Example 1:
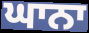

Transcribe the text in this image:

ਘਾਨਾ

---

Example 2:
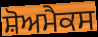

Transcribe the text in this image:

ਸ਼ੋਅਮੈਕਸ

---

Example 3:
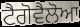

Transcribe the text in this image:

ਟੈਗੋਵੈਲੋਆ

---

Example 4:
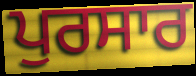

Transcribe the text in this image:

ਪੁਰਸਾਰ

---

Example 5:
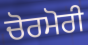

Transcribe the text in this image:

ਚੋਰਮੋਰੀ